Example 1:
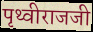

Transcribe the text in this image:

पृथ्वीराजजी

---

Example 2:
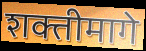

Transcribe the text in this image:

शक्तीमागे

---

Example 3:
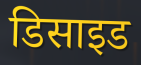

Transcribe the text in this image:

डिसाइड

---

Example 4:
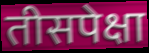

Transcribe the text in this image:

तीसपेक्षा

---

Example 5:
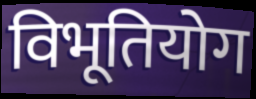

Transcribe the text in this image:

विभूतियोग